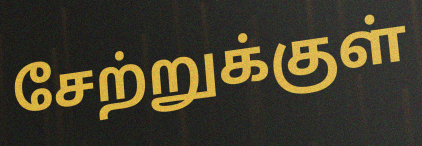
சேற்றுக்குள்